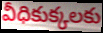
వీధికుక్కలకు